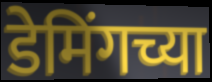
डेमिंगच्या